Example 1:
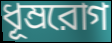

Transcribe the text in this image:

ধূম্ররোগ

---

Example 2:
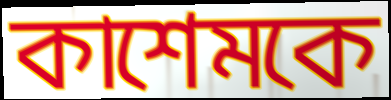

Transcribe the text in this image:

কাশেমকে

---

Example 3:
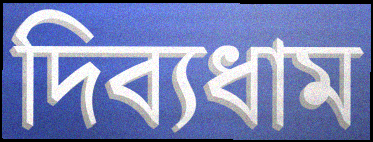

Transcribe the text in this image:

দিব্যধাম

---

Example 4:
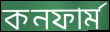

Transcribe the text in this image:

কনফার্ম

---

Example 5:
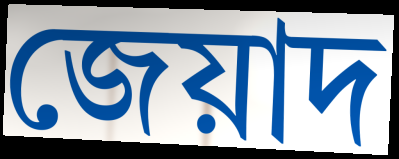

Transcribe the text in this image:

জেয়াদ